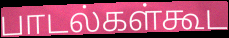
பாடல்கள்கூட